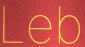
Leb